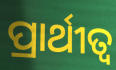
ପ୍ରାର୍ଥୀତ୍ଵ